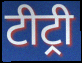
टीट्री